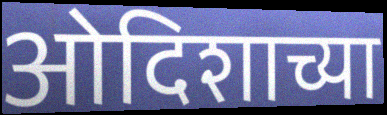
ओदिशाच्या